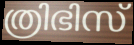
ത്രിഭിസ്